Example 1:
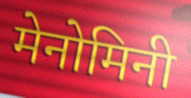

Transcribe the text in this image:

मेनोमिनी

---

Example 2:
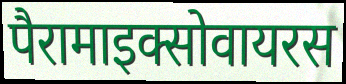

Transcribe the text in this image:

पैरामाइक्सोवायरस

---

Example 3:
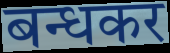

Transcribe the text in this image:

बन्धकर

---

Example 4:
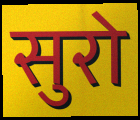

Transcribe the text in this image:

सुरो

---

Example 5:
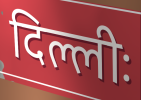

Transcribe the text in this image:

दिल्लीः